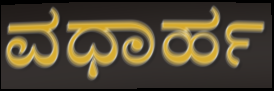
ವಧಾರ್ಹ